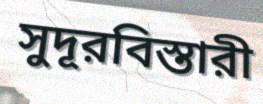
সুদূরবিস্তারী